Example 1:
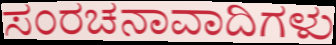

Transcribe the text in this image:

ಸಂರಚನಾವಾದಿಗಳು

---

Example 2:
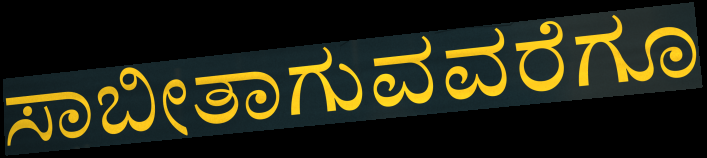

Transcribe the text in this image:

ಸಾಬೀತಾಗುವವರೆಗೂ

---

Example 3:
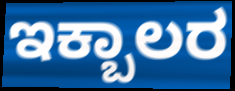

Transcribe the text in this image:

ಇಕ್ಬಾಲರ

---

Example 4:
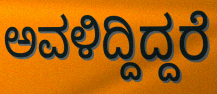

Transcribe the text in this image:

ಅವಳಿದ್ದಿದ್ದರೆ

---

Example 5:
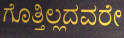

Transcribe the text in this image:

ಗೊತ್ತಿಲ್ಲದವರೇ